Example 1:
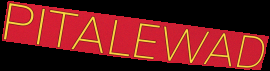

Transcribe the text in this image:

PITALEWAD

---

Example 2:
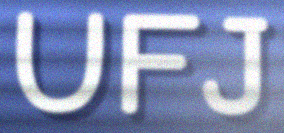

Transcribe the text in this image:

UFJ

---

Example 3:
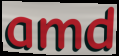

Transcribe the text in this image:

amd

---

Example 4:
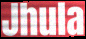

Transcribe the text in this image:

Jhula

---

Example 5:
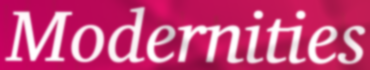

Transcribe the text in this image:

Modernities